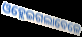
ଓହ୍ଲେଇଗଲାବେଳେ